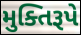
મુક્તિરૂપે